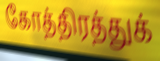
கோத்திரத்துக்